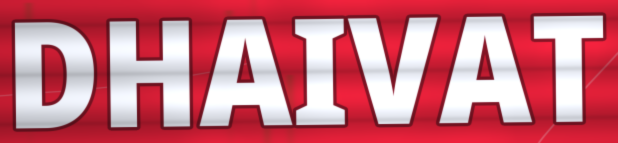
DHAIVAT